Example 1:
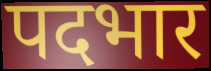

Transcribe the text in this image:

पदभार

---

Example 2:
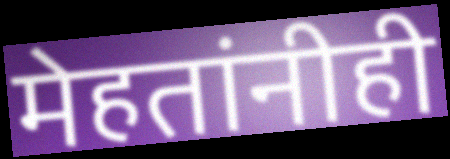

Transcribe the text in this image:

मेहतांनीही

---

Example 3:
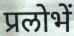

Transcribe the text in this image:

प्रलोभें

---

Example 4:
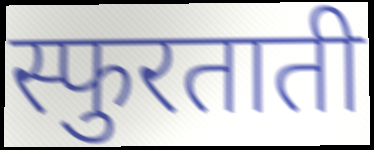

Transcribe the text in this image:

स्फुरताती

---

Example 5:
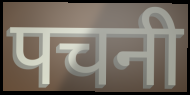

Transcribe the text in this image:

पचनी